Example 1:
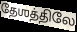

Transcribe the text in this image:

தேஶத்திலே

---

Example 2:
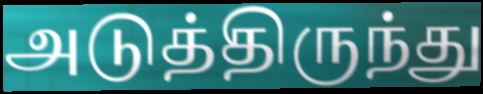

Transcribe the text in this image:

அடுத்திருந்து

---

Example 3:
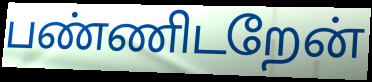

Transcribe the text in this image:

பண்ணிடறேன்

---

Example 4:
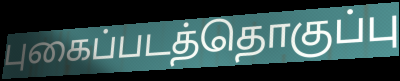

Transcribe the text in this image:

புகைப்படத்தொகுப்பு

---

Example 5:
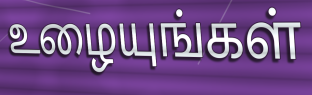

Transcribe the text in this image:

உழையுங்கள்